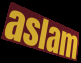
aslam